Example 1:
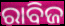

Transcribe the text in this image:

ରାବିଜ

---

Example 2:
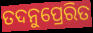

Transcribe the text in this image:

ତଦନୁପ୍ରେରିତ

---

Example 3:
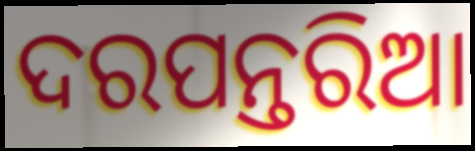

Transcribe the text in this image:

ଦରପନ୍ତରିଆ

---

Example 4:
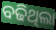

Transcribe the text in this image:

ବଢିଥିଲା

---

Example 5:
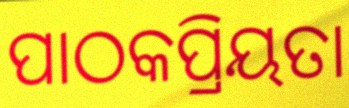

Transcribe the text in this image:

ପାଠକପ୍ରିୟତା